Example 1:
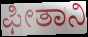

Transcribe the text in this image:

ಫೀತಾನಿ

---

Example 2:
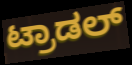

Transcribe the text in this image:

ಟ್ರಾಡಲ್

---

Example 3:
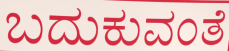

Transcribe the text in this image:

ಬದುಕುವಂತೆ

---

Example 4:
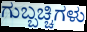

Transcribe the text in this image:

ಗುಬ್ಬಚ್ಚಿಗಳು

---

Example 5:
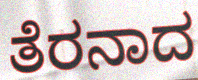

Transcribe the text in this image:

ತೆರನಾದ